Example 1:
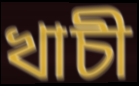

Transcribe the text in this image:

খাচী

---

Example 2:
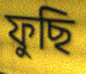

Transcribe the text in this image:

ফুছি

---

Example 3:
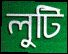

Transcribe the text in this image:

লুটি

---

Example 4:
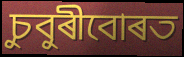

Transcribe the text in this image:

চুবুৰীবোৰত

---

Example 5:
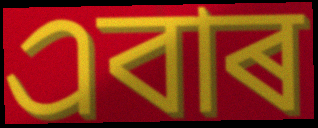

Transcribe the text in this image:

এবাৰ